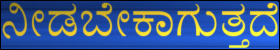
ನೀಡಬೇಕಾಗುತ್ತದೆ